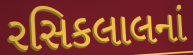
રસિકલાલનાં